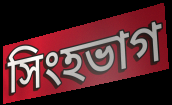
সিংহভাগ